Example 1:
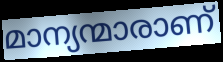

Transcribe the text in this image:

മാന്യന്മാരാണ്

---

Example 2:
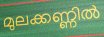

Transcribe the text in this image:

മുലക്കണ്ണിൽ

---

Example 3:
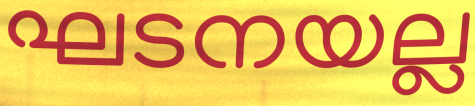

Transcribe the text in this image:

ഘടനയല്ല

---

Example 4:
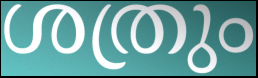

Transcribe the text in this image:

ശത്രും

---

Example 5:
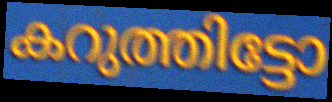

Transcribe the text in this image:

കറുത്തിട്ടോ